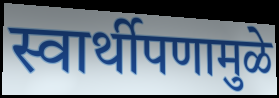
स्वार्थीपणामुळे